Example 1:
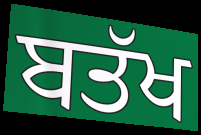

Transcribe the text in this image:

ਬਤੱਖ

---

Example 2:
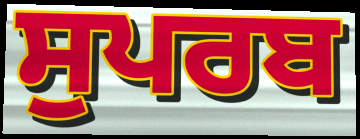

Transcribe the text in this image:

ਸੁਪਰਬ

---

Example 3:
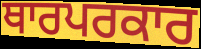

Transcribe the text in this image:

ਥਾਰਪਰਕਾਰ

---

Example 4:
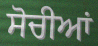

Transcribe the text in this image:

ਸੋਚੀਆਂ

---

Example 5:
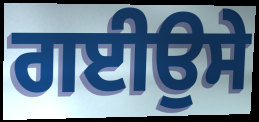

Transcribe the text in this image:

ਗਈਉਸੇ